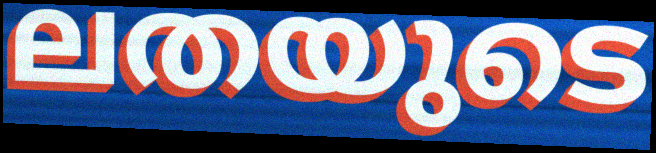
ലതയുടെ